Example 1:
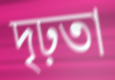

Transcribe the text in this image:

দৃঢ়তা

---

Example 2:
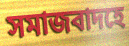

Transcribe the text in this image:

সমাজবাদহে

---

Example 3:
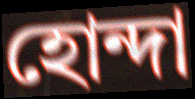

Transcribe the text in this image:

হোন্দা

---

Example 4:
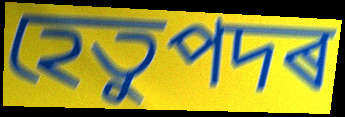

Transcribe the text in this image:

হেতুপদৰ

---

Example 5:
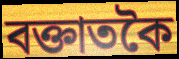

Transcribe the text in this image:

বক্তাতকৈ